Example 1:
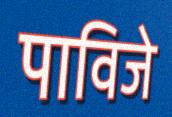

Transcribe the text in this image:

पाविजे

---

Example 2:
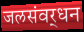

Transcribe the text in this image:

जलसंवर्धन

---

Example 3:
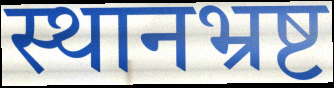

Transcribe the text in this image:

स्थानभ्रष्ट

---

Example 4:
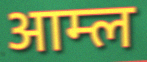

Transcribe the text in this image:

आम्ल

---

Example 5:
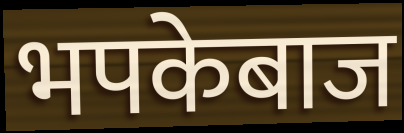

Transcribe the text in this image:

भपकेबाज